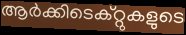
ആർക്കിടെക്റ്റുകളുടെ